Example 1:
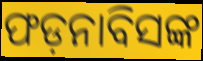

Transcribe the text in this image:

ଫଡ଼ନାବିସଙ୍କ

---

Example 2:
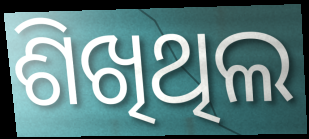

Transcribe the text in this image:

ଶିଖିଥିଲ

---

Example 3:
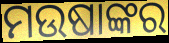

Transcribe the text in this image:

ମଉଷାଙ୍କର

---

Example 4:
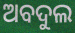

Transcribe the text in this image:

ଅବଦୁଲ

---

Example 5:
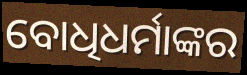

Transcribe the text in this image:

ବୋଧିଧର୍ମାଙ୍କର